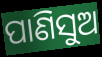
ପାଣିସୁଅ